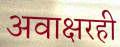
अवाक्षरही